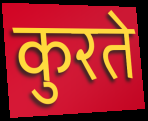
कुरते